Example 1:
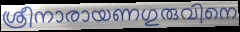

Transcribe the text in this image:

ശ്രീനാരായണഗുരുവിനെ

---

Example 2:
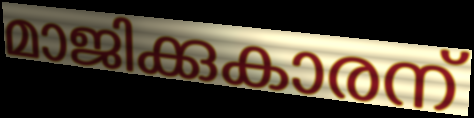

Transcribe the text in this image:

മാജിക്കുകാരന്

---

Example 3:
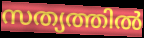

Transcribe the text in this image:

സത്യത്തിൽ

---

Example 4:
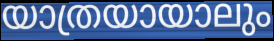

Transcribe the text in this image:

യാത്രയായാലും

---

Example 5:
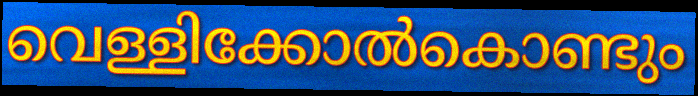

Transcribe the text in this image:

വെള്ളിക്കോൽകൊണ്ടും